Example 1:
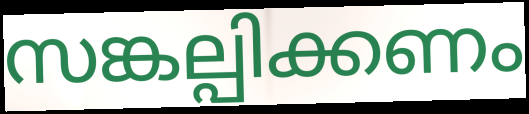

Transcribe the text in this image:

സങ്കല്പിക്കണം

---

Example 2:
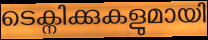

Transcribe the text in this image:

ടെക്നിക്കുകളുമായി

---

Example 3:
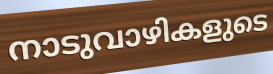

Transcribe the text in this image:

നാടുവാഴികളുടെ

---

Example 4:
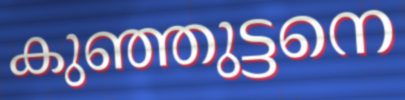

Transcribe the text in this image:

കുഞ്ഞുട്ടനെ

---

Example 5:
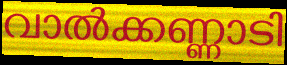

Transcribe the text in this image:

വാൽക്കണ്ണാടി